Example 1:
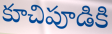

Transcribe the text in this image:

కూచిపూడికి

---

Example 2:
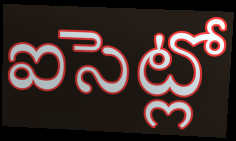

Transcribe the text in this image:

ఐసెట్లో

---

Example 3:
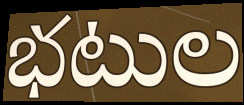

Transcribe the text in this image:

భటుల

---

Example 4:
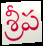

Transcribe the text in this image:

శ్రీప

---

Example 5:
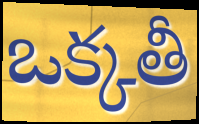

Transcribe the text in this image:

ఒక్కతీ